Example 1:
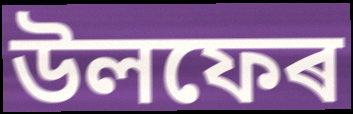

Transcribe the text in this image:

উলফেৰ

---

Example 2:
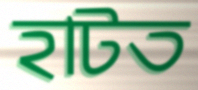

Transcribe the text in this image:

হাটত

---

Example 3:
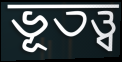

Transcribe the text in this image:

ভূতত্ত্ব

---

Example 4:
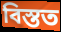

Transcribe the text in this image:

বিস্তত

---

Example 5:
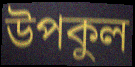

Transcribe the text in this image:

উপকুল